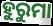
ହୁରୁମା